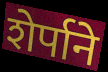
शेर्पाने